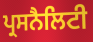
ਪ੍ਰਸਨੈਲਿਟੀ